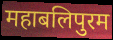
महाबलिपुरम